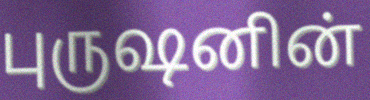
புருஷனின்